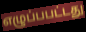
எழுப்பபட்டது